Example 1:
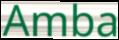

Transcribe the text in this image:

Amba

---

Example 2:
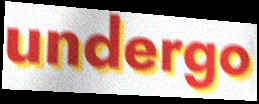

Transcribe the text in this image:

undergo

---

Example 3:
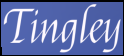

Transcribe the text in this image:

Tingley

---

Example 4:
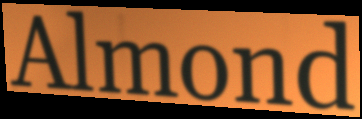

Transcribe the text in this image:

Almond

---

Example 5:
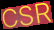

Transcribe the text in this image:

CSR